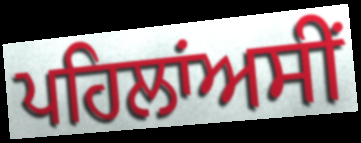
ਪਹਿਲਾਂਅਸੀਂ